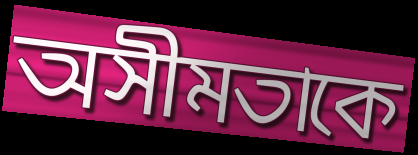
অসীমতাকে